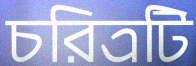
চরিত্রটি